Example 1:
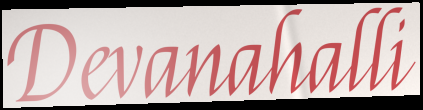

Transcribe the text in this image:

Devanahalli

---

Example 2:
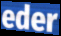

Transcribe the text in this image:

eder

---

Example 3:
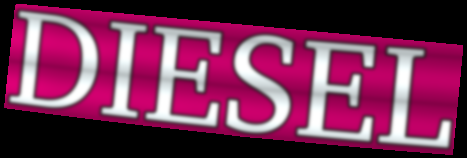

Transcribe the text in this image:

DIESEL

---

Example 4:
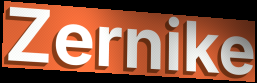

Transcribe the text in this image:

Zernike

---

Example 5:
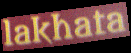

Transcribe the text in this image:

lakhata